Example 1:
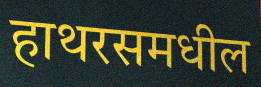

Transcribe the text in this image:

हाथरसमधील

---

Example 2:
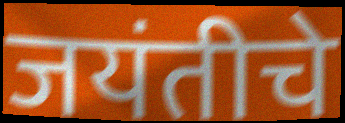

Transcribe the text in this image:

जयंतीचे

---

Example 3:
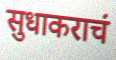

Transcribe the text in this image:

सुधाकराचं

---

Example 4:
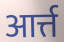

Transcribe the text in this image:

आर्त्त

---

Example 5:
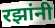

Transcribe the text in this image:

रझांनी